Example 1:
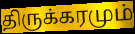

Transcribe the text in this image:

திருக்கரமும்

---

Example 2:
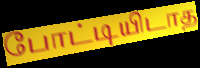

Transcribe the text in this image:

போட்டியிடாத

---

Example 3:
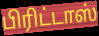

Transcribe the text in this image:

பிரிட்டாஸ்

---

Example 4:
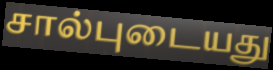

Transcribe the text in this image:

சால்புடையது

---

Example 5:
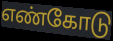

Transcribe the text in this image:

எண்கோடு